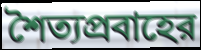
শৈত্যপ্রবাহের